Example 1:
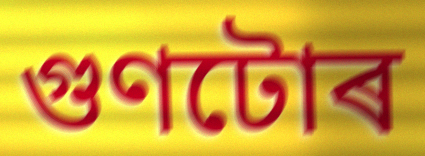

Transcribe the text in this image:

গুণটোৰ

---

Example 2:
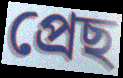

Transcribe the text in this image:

প্ৰেছ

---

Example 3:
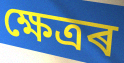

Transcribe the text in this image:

ক্ষেত্ৰৰ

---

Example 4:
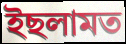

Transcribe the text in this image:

ইছলামত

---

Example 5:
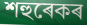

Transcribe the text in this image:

শহুৰেকৰ